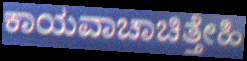
ಕಾಯವಾಚಾಚಿತ್ತೇಹಿ